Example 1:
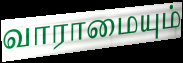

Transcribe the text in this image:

வாராமையும்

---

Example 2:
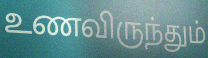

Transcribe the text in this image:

உணவிருந்தும்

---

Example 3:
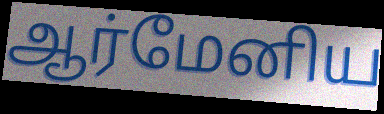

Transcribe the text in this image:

ஆர்மேனிய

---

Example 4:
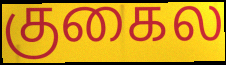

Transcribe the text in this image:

குகைல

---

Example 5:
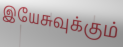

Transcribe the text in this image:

இயேசுவுக்கும்